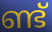
ണ്ട്